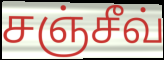
சஞ்சீவ்